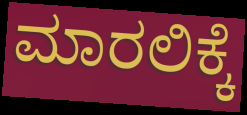
ಮಾರಲಿಕ್ಕೆ